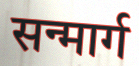
सन्मार्ग